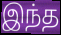
இந்த